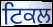
ਟਿਕਲ